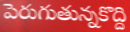
పెరుగుతున్నకొద్ది